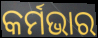
କର୍ମଭାର